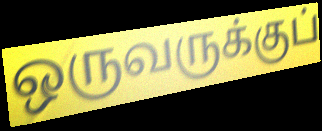
ஒருவருக்குப்